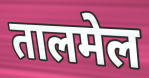
तालमेल